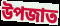
উপজাত